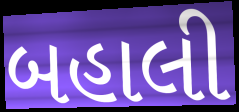
બહાલી